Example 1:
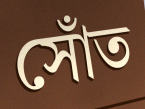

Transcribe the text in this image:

সোঁত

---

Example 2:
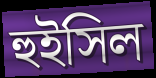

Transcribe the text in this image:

হুইসিল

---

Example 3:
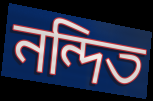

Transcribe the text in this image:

নন্দিত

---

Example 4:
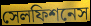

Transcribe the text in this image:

সেলফিশনেস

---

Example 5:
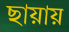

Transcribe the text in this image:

ছায়ায়